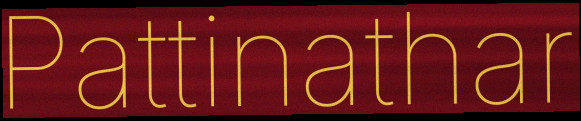
Pattinathar